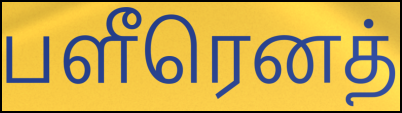
பளீரெனத்